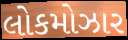
લોકમોઝાર